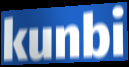
kunbi